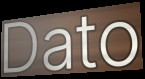
Dato